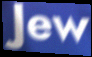
Jew